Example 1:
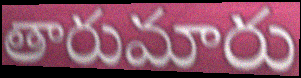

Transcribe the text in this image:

తారుమారు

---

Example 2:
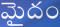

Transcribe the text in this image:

మైదం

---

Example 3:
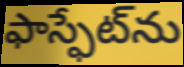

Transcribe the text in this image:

ఫాస్ఫేట్‌ను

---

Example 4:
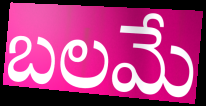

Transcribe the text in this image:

బలమే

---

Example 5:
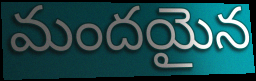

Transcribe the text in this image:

మందయైన